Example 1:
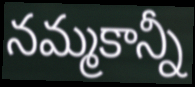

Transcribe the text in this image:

నమ్మకాన్నీ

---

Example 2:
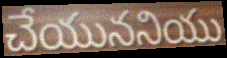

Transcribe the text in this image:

చేయుననియు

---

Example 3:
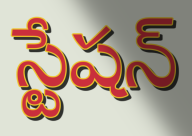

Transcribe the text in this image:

స్టేషన్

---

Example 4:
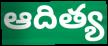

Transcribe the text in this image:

ఆదిత్య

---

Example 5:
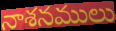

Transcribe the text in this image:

నాశనములు